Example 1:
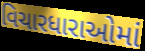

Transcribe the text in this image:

વિચારધારાઓમાં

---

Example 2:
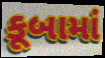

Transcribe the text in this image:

કૂબામાં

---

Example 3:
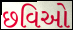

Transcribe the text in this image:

છવિઓ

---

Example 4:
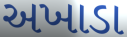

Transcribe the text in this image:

અખાડા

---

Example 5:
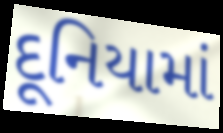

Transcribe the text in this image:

દૂનિયામાં